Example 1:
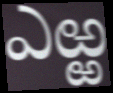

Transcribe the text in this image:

ఎఱ్ఱ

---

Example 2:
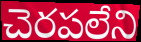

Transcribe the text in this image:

చెరపలేని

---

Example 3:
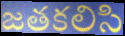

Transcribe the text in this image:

జతకలిసి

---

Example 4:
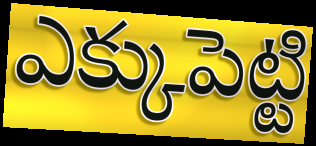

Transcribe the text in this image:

ఎక్కుపెట్టి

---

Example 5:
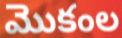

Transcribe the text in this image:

మొకంల